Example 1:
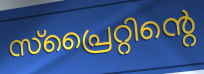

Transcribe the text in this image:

സ്പ്രൈറ്റിന്റെ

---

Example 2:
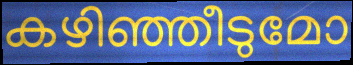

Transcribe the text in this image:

കഴിഞ്ഞീടുമോ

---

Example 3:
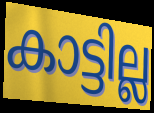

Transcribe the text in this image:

കാട്ടില്ല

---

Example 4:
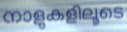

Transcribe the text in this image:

നാളുകളിലൂടെ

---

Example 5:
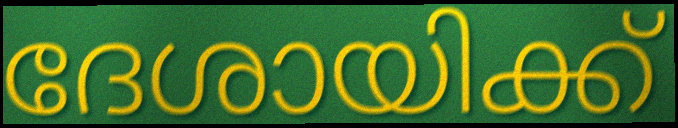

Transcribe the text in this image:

ദേശായിക്ക്